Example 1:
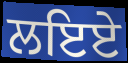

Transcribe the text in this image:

ਲਇਏ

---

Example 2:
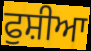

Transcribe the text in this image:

ਫੁਸ਼ੀਆ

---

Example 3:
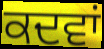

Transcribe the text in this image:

ਕਦਵਾਂ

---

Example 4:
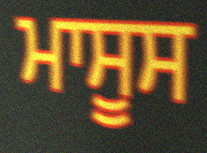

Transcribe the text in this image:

ਮਾਸੂਸ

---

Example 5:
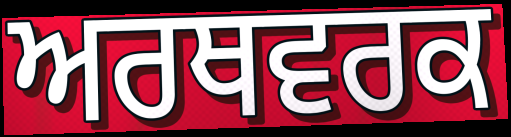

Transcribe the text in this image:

ਅਰਥਵਰਕ